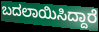
ಬದಲಾಯಿಸಿದ್ದಾರೆ